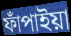
ফাঁপাইয়া